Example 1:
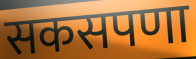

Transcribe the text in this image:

सकसपणा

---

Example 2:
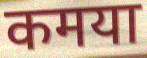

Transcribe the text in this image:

कमया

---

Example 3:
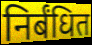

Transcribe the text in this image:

निर्बंधित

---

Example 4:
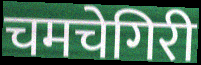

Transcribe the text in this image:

चमचेगिरी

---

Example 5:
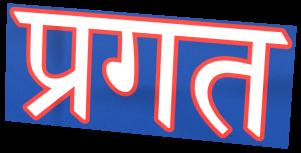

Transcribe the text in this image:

प्रगत